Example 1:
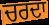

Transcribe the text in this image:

ਚਰਦਾ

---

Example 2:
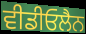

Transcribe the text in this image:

ਵੀਡੀਓਲੈਨ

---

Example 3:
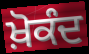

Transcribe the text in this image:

ਖ਼ੋਕੰਦ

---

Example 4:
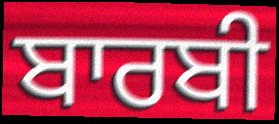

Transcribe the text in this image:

ਬਾਰਬੀ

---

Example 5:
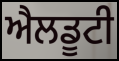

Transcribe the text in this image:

ਐਲਡੂਟੀ